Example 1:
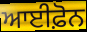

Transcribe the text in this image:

ਆਈਫ਼ੋਨ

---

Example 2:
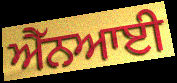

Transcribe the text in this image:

ਐੱਨਆਈ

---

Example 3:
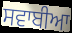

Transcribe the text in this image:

ਸਵਾਬੀਆ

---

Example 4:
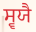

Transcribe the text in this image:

ਸ੍ਵਯੈ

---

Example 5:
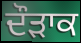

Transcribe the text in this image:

ਦੌੜਾਕ